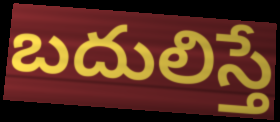
బదులిస్తే